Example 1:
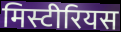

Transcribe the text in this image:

मिस्टीरियस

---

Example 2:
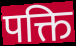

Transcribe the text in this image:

पक्ति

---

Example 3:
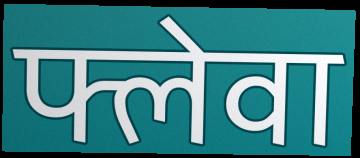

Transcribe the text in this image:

फ्लेवा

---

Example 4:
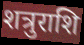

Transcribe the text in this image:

शत्रुराशि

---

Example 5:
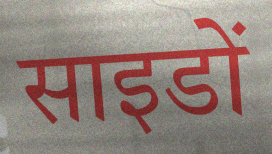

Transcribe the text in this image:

साइडों